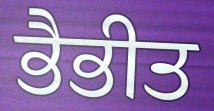
ਭੈਭੀਤ